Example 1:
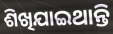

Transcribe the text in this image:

ଶିଖିଯାଇଥାନ୍ତି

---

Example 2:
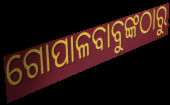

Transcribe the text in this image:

ଗୋପାଳବାବୁଙ୍କଠାରୁ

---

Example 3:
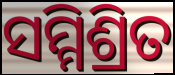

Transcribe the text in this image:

ସମ୍ମିଶ୍ରିତ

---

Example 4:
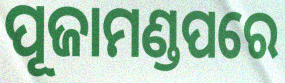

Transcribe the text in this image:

ପୂଜାମଣ୍ଡପରେ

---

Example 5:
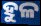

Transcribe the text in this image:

ହୁଳ